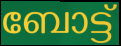
ബോട്ട്